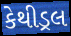
કેથીડ્રલ